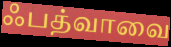
ஃபத்வாவை